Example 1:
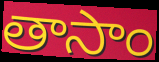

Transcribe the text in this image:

తాసాం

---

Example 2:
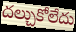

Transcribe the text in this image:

దల్చుకోలేదు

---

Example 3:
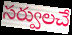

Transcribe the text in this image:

సర్వులచే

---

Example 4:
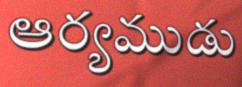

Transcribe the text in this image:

ఆర్యముడు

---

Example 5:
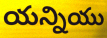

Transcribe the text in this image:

యన్నియు